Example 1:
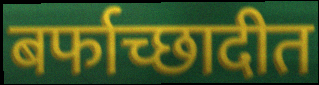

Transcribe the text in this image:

बर्फाच्छादीत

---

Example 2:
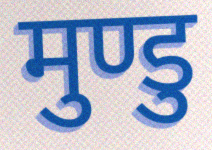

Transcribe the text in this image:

मुण्डु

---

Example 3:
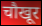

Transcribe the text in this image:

चौखूर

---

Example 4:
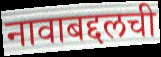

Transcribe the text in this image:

नावाबद्दलची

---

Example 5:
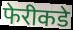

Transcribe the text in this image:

फेरीकडे